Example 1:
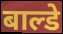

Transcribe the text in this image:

बाल्डे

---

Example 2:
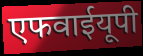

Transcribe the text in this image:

एफवाईयूपी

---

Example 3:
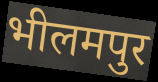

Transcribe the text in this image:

भीलमपुर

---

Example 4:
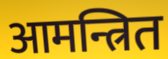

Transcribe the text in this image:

आमन्त्रित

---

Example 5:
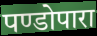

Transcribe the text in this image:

पण्डोपारा